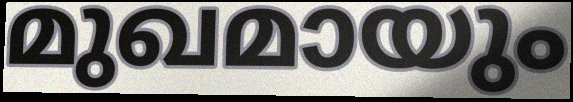
മുഖമായും